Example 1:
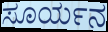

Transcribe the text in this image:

ಸೂರ್ಯನ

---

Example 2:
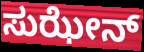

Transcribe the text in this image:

ಸುಝೇನ್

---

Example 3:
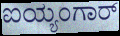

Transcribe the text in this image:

ಐಯ್ಯಂಗಾರ್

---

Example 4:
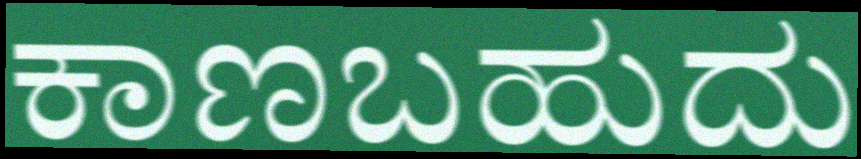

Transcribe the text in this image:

ಕಾಣಬಹುದು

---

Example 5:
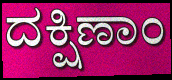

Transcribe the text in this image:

ದಕ್ಷಿಣಾಂ